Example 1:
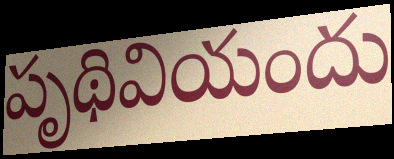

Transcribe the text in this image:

పృథివియందు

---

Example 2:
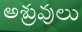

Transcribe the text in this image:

అశ్రువులు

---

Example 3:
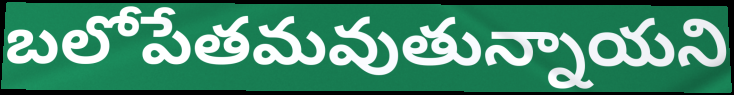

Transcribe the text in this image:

బలోపేతమవుతున్నాయని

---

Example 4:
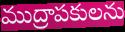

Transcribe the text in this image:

ముద్రాపకులను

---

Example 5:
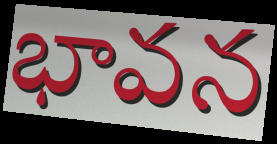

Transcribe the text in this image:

భావన